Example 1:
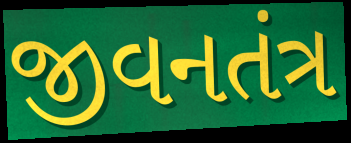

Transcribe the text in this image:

જીવનતંત્ર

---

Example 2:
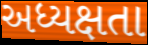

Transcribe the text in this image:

અધ્યક્ષતા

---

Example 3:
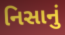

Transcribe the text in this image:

નિસાનું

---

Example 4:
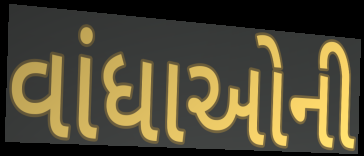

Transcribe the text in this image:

વાંધાઓની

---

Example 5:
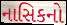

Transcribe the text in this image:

નાસિકનો